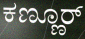
ಕಣ್ಣೂರ್